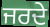
ਜਰਦੇ